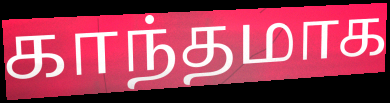
காந்தமாக